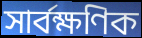
সার্বক্ষণিক